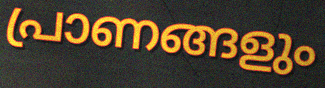
പ്രാണങ്ങളും